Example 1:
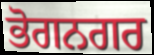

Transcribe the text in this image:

ਭੋਗਨਗਰ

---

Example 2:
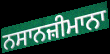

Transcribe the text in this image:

ਨਸਾਨਜ਼ੀਮਾਨਾ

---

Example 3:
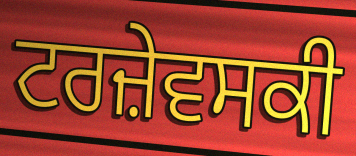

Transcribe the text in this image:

ਟਰਜ਼ੇਵਸਕੀ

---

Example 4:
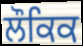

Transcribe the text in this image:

ਲੌਕਿਕ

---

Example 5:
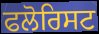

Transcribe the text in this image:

ਫਲੋਰਿਸਟ